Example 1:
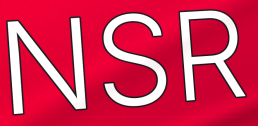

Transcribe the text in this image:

NSR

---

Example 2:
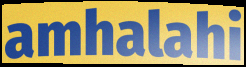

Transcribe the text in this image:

amhalahi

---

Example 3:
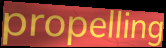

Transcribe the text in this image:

propelling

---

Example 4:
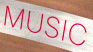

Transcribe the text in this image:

MUSIC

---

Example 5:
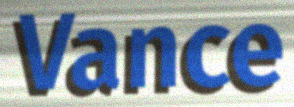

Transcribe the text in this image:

Vance